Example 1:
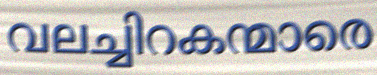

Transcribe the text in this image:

വലച്ചിറകന്മാരെ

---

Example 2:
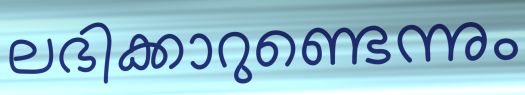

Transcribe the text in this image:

ലഭിക്കാറുണ്ടെന്നും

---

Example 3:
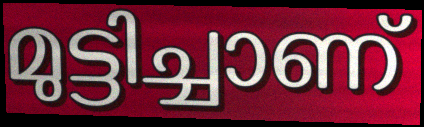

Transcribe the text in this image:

മുട്ടിച്ചാണ്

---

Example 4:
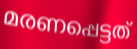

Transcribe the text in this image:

മരണപ്പെട്ടത്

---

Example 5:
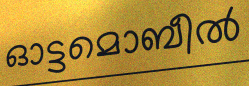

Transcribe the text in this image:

ഓട്ടമൊബീൽ